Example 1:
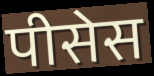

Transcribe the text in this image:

पीसेस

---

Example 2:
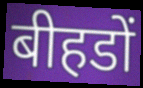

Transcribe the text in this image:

बीहडों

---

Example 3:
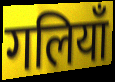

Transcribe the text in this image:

गलियाँ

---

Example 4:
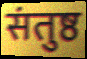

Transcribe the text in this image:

संतुष्ठ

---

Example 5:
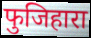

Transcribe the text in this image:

फुजिहारा